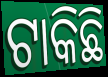
ଟାକିଛି